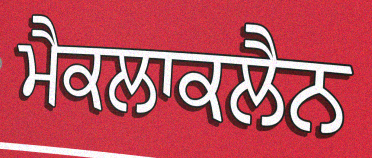
ਮੈਕਲਾਕਲੈਨ